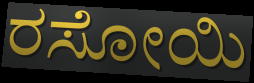
ರಸೋಯಿ